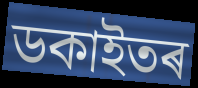
ডকাইতৰ